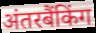
अंतरबैंकिंग